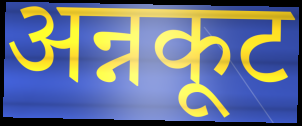
अन्नकूट